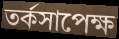
তর্কসাপেক্ষ